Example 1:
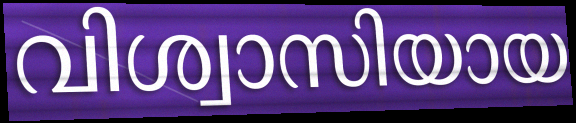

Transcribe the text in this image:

വിശ്വാസിയായ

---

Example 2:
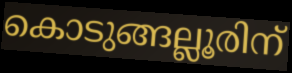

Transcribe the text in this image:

കൊടുങ്ങല്ലൂരിന്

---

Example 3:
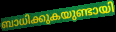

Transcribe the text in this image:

ബാധിക്കുകയുണ്ടായി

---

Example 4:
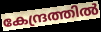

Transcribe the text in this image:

കേന്ദ്രത്തിൽ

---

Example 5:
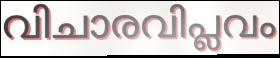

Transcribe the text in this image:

വിചാരവിപ്ലവം